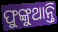
ଫୁଙ୍କୁଥାନ୍ତି